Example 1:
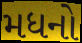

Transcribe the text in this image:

મધનો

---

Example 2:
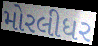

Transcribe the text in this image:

મોરલીધર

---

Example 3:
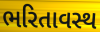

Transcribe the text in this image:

ભરિતાવસ્થ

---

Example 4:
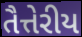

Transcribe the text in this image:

તૈત્તેરીય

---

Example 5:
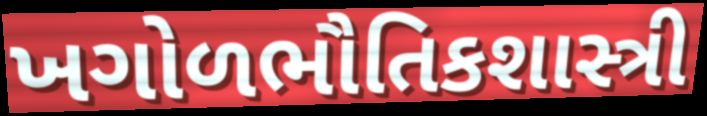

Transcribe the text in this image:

ખગોળભૌતિકશાસ્ત્રી